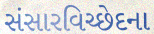
સંસારવિચ્છેદના